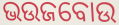
ଭଉଜବୋଉ